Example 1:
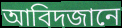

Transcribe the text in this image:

আবিদজানে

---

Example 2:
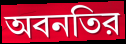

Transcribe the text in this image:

অবনতির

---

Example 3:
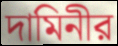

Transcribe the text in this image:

দামিনীর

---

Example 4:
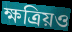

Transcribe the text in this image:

ক্ষত্রিয়ও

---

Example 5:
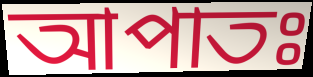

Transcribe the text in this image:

আপাতঃ